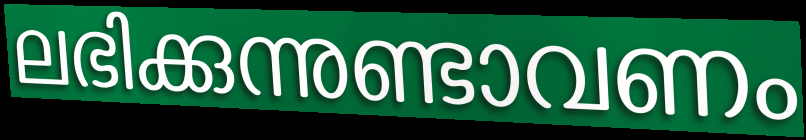
ലഭിക്കുന്നുണ്ടാവണം